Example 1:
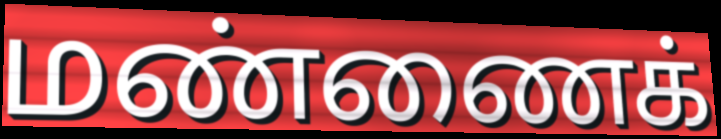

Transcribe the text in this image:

மண்ணைக்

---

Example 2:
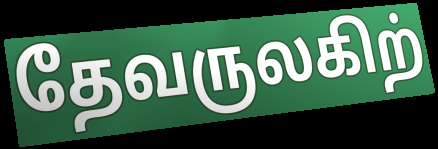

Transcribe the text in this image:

தேவருலகிற்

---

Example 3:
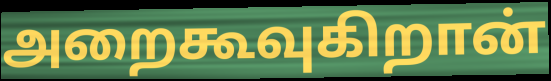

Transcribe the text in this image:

அறைகூவுகிறான்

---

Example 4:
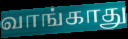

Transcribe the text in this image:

வாங்காது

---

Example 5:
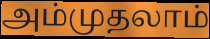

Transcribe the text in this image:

அம்முதலாம்